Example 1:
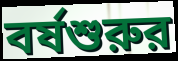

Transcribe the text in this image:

বর্ষশুরুর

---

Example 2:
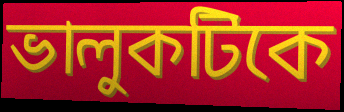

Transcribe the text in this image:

ভালুকটিকে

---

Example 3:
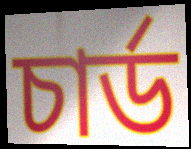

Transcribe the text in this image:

চার্ড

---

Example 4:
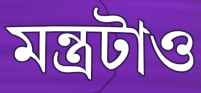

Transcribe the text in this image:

মন্ত্রটাও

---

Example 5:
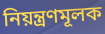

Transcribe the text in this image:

নিয়ন্ত্রণমূলক